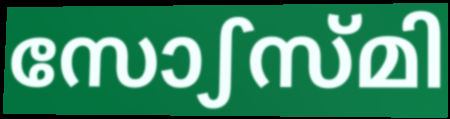
സോഽസ്മി